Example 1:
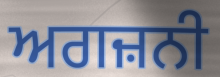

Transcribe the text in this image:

ਅਗਜ਼ਨੀ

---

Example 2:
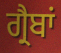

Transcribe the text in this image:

ਗ੍ਰੈਬਾਂ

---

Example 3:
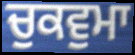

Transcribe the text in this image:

ਚੁਕਵੁਮਾ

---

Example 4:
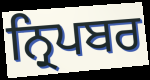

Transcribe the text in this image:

ਨ੍ਰਿਪਬਰ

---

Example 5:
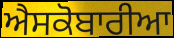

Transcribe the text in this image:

ਐਸਕੋਬਾਰੀਆ